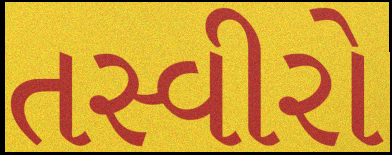
તસ્વીરો